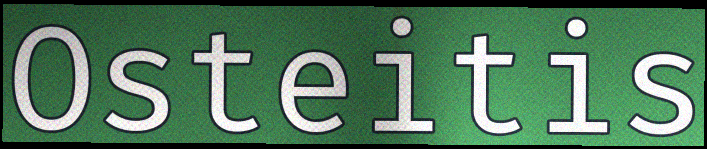
Osteitis